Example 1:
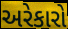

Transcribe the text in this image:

અરેકારો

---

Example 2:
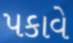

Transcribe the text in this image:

પકાવે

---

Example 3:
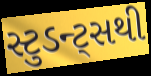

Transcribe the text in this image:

સ્ટુડન્ટ્સથી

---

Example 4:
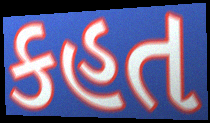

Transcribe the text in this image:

કહત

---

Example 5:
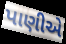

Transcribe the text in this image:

પાણીએ